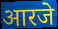
आरजे